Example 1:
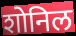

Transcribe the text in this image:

शोनिल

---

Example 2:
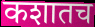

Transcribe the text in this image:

कशातच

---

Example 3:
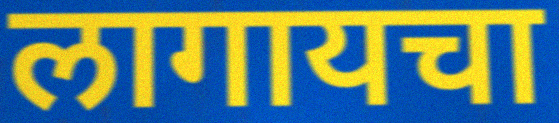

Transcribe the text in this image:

लागायचा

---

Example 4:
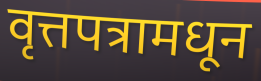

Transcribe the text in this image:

वृत्तपत्रामधून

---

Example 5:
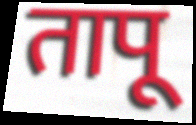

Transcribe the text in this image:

तापू